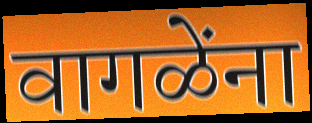
वागळेंना